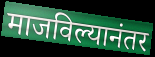
माजविल्यानंतर